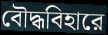
বৌদ্ধবিহারে